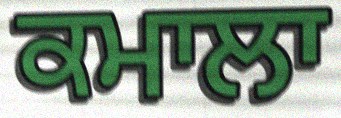
ਕਮਾਲਾ